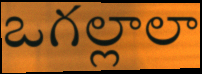
ఒగల్లాలా